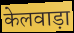
केलवाड़ा